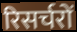
रिसर्चरों